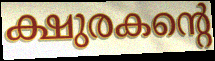
ക്ഷുരകന്റെ